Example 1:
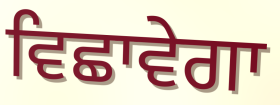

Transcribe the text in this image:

ਵਿਛਾਵੇਗਾ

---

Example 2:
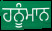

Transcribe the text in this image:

ਹਨੂੰਮਾਨ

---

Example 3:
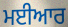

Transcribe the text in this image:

ਮਈਆਰ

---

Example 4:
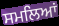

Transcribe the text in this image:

ਸਮਲਿਆਂ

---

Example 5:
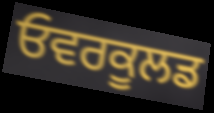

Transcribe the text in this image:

ਓਵਰਕੂਲਡ